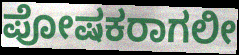
ಪೋಷಕರಾಗಲೀ